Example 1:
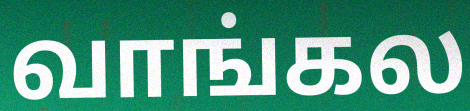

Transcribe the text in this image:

வாங்கல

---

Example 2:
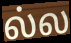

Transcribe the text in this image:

ல்ல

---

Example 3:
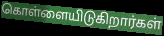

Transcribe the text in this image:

கொள்ளையிடுகிறார்கள்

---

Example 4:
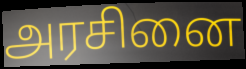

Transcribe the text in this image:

அரசினை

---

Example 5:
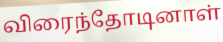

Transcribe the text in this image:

விரைந்தோடினாள்